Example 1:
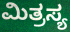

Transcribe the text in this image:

ಮಿತ್ರಸ್ಯ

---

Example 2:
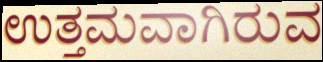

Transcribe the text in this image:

ಉತ್ತಮವಾಗಿರುವ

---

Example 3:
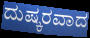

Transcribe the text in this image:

ದುಷ್ಕರವಾದ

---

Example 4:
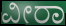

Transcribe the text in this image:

ವೀರಾ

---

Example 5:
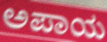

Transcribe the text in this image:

ಅಪಾಯ